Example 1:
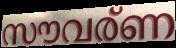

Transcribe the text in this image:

സൗവര്ണ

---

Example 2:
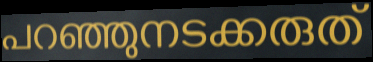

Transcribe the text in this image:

പറഞ്ഞുനടക്കരുത്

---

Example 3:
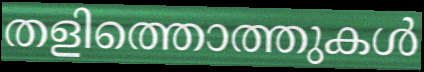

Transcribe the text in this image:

തളിത്തൊത്തുകൾ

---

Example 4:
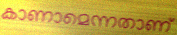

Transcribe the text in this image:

കാണാമെന്നതാണ്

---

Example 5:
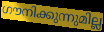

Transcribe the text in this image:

ഗൗനിക്കുന്നുമില്ല